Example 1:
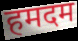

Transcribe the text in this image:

हमदम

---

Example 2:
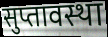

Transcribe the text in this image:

सुप्तावस्था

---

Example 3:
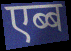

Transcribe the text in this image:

एब्ब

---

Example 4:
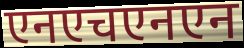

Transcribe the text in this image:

एनएचएनएन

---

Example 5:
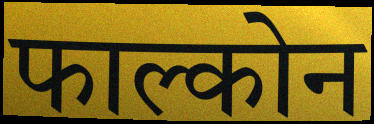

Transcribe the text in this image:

फाल्कोन